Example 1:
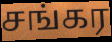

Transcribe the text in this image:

சங்கர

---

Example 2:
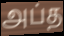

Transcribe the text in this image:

அப்த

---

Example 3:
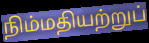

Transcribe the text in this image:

நிம்மதியற்றுப்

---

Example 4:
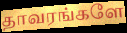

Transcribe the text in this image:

தாவரங்களே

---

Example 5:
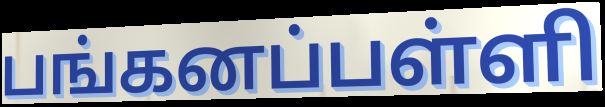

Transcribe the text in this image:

பங்கனப்பள்ளி